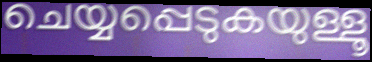
ചെയ്യപ്പെടുകയുള്ളൂ